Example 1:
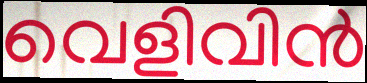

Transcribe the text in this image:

വെളിവിൻ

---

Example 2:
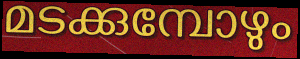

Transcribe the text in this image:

മടക്കുമ്പോഴും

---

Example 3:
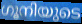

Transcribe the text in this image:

ഗൂനിയുടെ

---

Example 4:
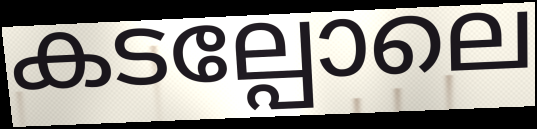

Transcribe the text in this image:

കടല്പോലെ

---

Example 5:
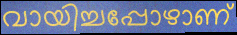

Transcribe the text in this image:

വായിച്ചപ്പോഴാണ്